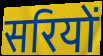
सरियों